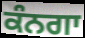
ਕੰਨਗਾ